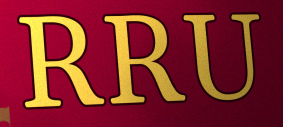
RRU